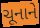
ચૂનાને